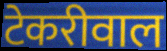
टेकरीवाल